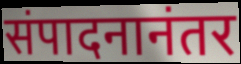
संपादनानंतर